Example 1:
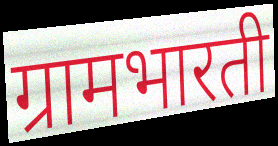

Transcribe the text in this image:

ग्रामभारती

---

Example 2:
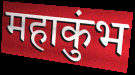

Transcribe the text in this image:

महाकुंभ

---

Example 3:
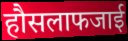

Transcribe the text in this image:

हौसलाफजाई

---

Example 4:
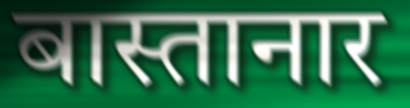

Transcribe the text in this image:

बास्तानार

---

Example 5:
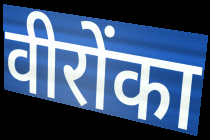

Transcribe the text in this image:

वीरोंका